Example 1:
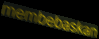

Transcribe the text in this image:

membebaskan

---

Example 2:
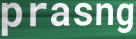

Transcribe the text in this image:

prasng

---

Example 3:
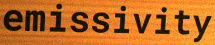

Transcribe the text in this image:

emissivity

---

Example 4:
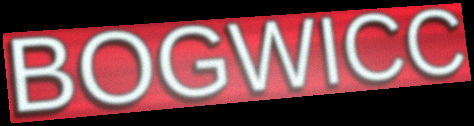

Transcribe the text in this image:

BOGWICC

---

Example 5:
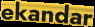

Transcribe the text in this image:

ekandar